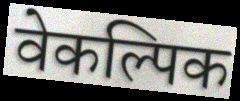
वेकल्पिक